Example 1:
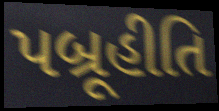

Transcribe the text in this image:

પબ્રૂહીતિ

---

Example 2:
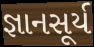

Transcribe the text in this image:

જ્ઞાનસૂર્ય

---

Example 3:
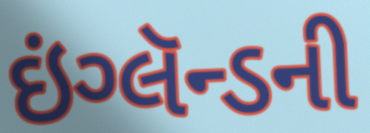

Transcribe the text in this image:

ઇંગ્લૅન્ડની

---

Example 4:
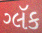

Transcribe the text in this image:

ગ્લૅક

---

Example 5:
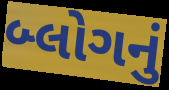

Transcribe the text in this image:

બ્લોગનું